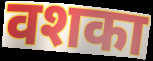
वशका